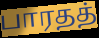
பாரதத்